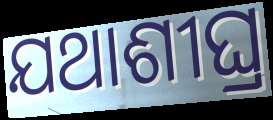
ଯଥାଶୀଘ୍ର